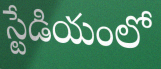
స్టేడియంలో